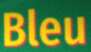
Bleu